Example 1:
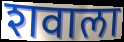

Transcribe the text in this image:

शवाला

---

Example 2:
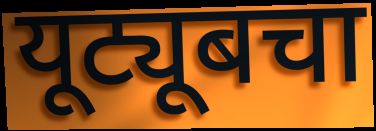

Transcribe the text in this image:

यूट्यूबचा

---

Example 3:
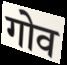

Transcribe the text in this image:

गोव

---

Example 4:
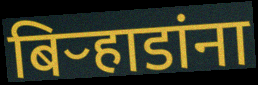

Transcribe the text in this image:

बिऱ्हाडांना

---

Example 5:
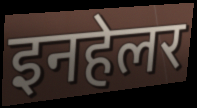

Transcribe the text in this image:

इनहेलर